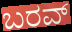
ಬರವ್